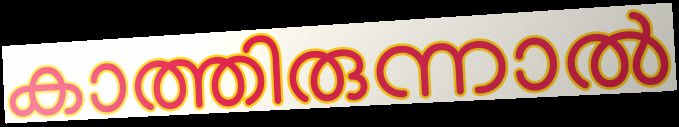
കാത്തിരുന്നാൽ